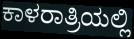
ಕಾಳರಾತ್ರಿಯಲ್ಲಿ